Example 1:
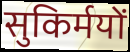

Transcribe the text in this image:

सुकिर्मयों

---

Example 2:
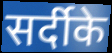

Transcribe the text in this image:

सर्दीके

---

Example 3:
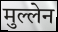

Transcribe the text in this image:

मुल्लेन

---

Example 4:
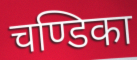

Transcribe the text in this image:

चण्डिका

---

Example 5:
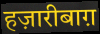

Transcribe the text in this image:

हज़ारीबाग़